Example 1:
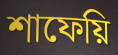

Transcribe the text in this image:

শাফেয়ি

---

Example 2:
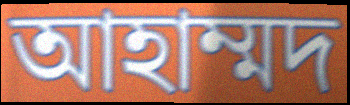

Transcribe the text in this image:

আহাম্মদ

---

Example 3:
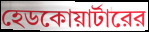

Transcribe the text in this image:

হেডকোয়ার্টারের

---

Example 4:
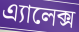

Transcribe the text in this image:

এ্যালেক্স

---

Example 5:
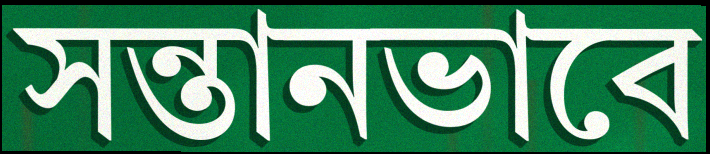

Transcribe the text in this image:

সন্তানভাবে